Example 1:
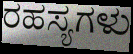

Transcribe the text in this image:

ರಹಸ್ಯಗಳು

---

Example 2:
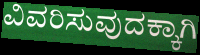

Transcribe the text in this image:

ವಿವರಿಸುವುದಕ್ಕಾಗಿ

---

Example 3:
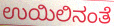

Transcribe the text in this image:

ಉಯಿಲಿನಂತೆ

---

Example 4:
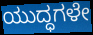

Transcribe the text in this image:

ಯುದ್ಧಗಳೇ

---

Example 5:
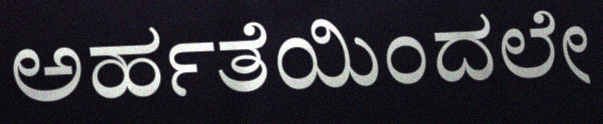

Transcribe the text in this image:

ಅರ್ಹತೆಯಿಂದಲೇ